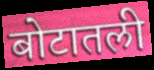
बोटातली